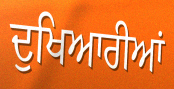
ਦੁਖਿਆਰੀਆਂ